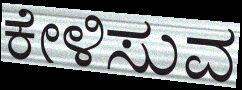
ಕೇಳಿಸುವ